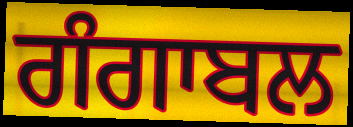
ਗੰਗਾਬਲ